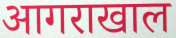
आगराखाल